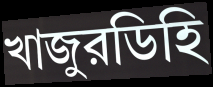
খাজুরডিহি